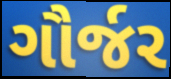
ગૌર્જર